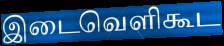
இடைவெளிகூட